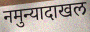
नमुन्यादाखल